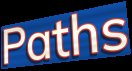
Paths